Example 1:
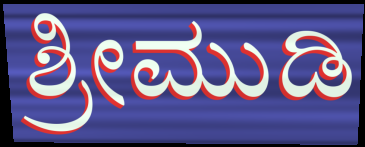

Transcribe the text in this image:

ಶ್ರೀಮುಡಿ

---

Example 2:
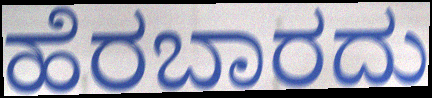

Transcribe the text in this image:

ಹೆರಬಾರದು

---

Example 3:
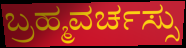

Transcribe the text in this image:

ಬ್ರಹ್ಮವರ್ಚಸ್ಸು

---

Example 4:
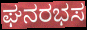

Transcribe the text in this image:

ಘನರಭಸ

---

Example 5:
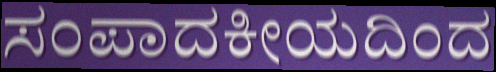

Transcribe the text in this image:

ಸಂಪಾದಕೀಯದಿಂದ